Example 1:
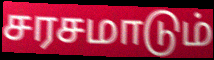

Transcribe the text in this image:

சரசமாடும்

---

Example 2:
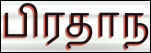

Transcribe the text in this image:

பிரதாந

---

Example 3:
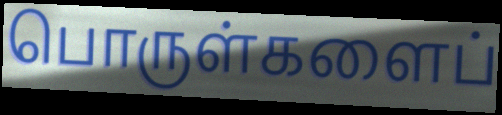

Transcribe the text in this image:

பொருள்களைப்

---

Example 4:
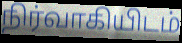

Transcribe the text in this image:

நிர்வாகியிடம்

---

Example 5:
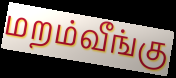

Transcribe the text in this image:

மறம்வீங்கு